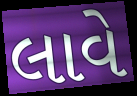
લાવે